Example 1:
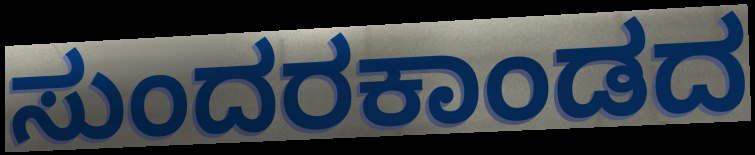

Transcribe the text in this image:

ಸುಂದರಕಾಂಡದ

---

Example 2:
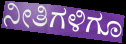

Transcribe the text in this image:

ನೀತಿಗಳಿಗೂ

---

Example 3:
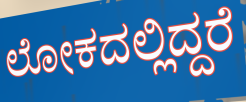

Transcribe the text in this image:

ಲೋಕದಲ್ಲಿದ್ದರೆ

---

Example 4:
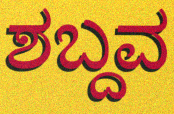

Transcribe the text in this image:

ಶಬ್ದವ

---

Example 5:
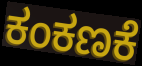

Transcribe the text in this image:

ಕಂಕಣಕೆ